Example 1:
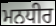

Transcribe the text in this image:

ਮਨਧੀਰ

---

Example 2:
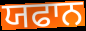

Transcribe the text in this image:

ਯਫਾਨ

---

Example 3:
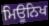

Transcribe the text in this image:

ਮਿਊਨਿਖ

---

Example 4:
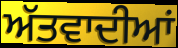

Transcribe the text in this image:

ਅੱਤਵਾਦੀਆਂ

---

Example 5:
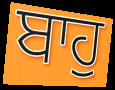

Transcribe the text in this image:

ਬਾਹੁ